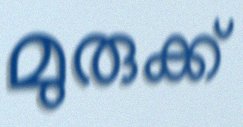
മുരുക്ക്